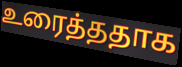
உரைத்ததாக